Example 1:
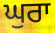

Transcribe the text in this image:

ਘੁਰਾ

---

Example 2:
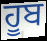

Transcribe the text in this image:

ਹੂਬ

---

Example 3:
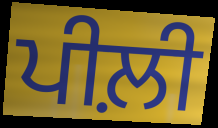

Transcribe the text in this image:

ਪੀਲ਼ੀ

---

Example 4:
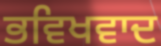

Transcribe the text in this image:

ਭਵਿਖਵਾਦ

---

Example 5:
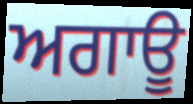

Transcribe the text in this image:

ਅਗਾਊ